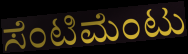
ಸೆಂಟಿಮೆಂಟು